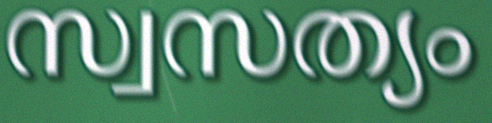
സ്വസത്യം